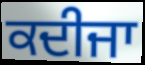
ਕਦੀਜਾ